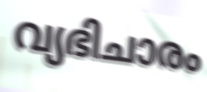
വ്യഭിചാരം